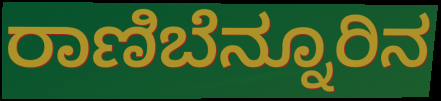
ರಾಣಿಬೆನ್ನೂರಿನ